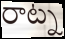
రాట్న